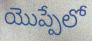
యొప్పేలో